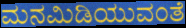
ಮನಮಿಡಿಯುವಂತೆ